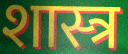
शास्‍त्र